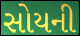
સોયની